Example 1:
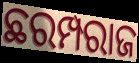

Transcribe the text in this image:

ଛରମ୍ପରାଜ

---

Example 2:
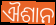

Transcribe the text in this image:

ଐଶାନ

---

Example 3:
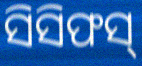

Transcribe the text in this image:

ସିସିଫସ୍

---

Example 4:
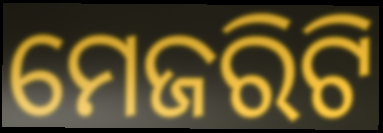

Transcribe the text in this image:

ମେଜରିଟି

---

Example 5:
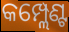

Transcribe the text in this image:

କମ୍ପ୍ଲେଣ୍ଟ